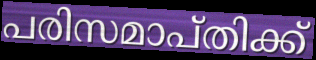
പരിസമാപ്തിക്ക്